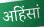
अहिंसां